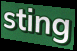
sting